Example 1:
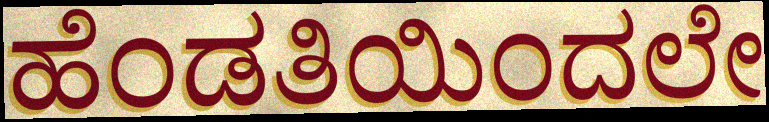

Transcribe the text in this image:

ಹೆಂಡತಿಯಿಂದಲೇ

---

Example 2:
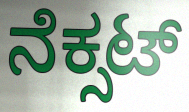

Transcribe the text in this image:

ನೆಕ್ಸಟ್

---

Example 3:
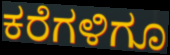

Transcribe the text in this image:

ಕರೆಗಳಿಗೂ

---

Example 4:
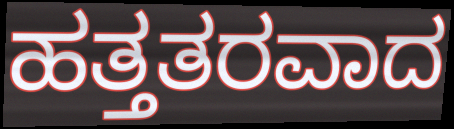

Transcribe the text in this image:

ಹತ್ತತರವಾದ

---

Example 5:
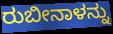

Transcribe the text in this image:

ರುಬೀನಾಳನ್ನು